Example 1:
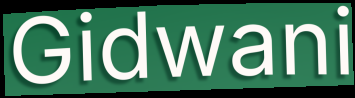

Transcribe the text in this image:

Gidwani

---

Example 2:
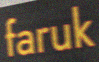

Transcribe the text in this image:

faruk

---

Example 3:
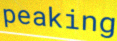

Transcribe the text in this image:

peaking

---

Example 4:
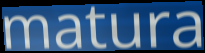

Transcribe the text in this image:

matura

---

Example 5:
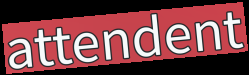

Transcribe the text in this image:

attendent